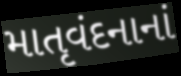
માતૃવંદનાનાં